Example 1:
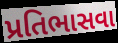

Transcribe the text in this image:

પ્રતિભાસવા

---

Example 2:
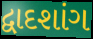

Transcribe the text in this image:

દ્વાદશાંગ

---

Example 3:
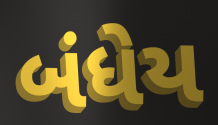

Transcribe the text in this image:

બંધેય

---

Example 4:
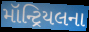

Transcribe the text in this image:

મૉન્ટ્રિયલના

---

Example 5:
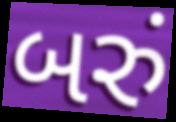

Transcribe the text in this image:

બરું